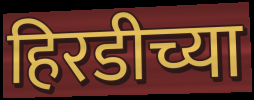
हिरडीच्या